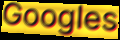
Googles